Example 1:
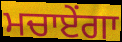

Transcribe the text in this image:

ਮਚਾਏਂਗਾ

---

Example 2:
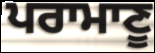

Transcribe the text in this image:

ਪਰਾਮਾਣੂ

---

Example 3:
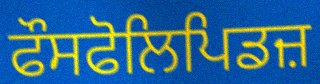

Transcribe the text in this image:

ਫੌਸਫੋਲਿਪਿਡਜ਼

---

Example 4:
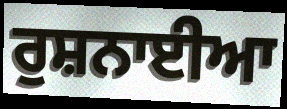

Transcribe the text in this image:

ਰੁਸ਼ਨਾਈਆ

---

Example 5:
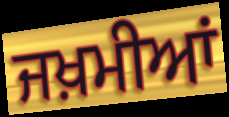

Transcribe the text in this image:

ਜਖ਼ਮੀਆਂ